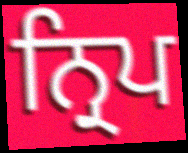
ਨ੍ਰਿਪ